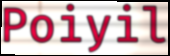
Poiyil